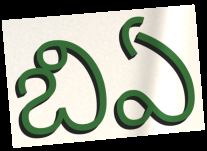
బిఏ